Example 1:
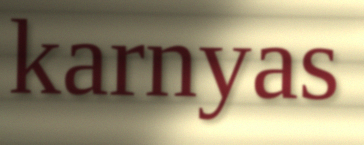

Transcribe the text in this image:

karnyas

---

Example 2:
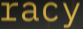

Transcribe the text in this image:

racy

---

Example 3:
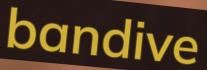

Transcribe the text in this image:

bandive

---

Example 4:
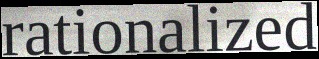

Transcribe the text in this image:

rationalized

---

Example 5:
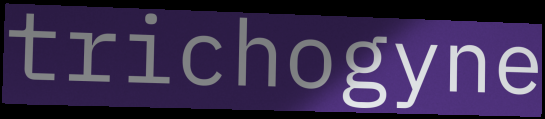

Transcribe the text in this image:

trichogyne